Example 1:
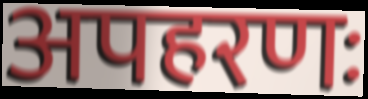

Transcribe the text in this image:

अपहरणः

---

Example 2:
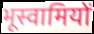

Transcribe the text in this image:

भूस्वामियों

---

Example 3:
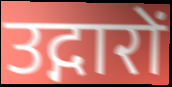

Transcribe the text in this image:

उद्गारों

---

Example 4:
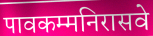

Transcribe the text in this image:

पावकम्मनिरासवे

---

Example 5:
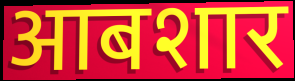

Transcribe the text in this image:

आबशार